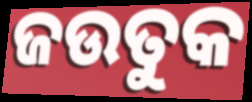
ଜଉତୁକ